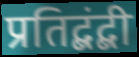
प्रतिद्बंद्बी